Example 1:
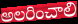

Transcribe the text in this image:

అలరించాలి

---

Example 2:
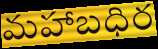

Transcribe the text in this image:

మహాబధిర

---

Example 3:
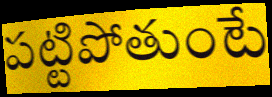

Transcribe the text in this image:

పట్టిపోతుంటే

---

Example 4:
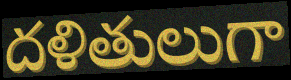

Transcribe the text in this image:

దళితులుగా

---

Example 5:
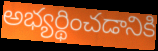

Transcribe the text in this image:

అభ్యర్థించడానికి